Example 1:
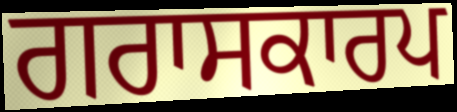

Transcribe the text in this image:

ਗਰਾਸਕਾਰਪ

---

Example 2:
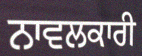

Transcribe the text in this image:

ਨਾਵਲਕਾਰੀ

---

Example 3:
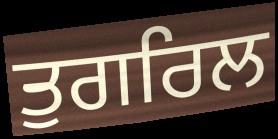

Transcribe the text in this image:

ਤੁਗਰਿਲ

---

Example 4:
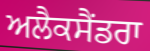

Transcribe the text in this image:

ਅਲੈਕਸੈਂਡਰਾ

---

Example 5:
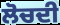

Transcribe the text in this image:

ਲੋਚਦੀ